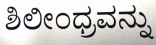
ಶಿಲೀಂಧ್ರವನ್ನು